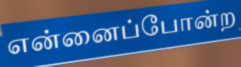
என்னைப்போன்ற